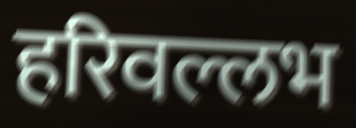
हरिवल्लभ